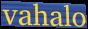
vahalo